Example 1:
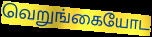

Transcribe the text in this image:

வெறுங்கையோட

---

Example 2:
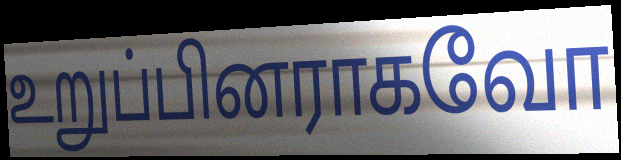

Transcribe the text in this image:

உறுப்பினராகவோ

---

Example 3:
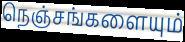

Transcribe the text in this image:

நெஞ்சங்களையும்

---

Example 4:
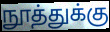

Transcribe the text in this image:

நூத்துக்கு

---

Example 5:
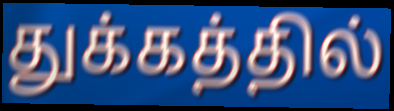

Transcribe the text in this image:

துக்கத்தில்